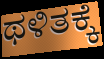
ಥಳಿತಕ್ಕೆ